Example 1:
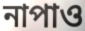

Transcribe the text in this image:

নাপাও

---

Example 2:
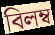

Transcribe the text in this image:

বিলম্ব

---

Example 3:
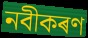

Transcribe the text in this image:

নবীকৰণ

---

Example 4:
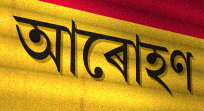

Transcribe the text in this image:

আৰোহণ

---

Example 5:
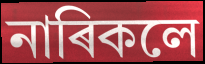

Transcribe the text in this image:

নাৰিকলে